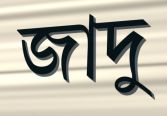
জাদু